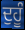
ਦੁਹੂੰ